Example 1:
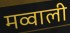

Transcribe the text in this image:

मव्वाली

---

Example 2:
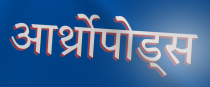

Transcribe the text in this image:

आर्थ्रोपोड्स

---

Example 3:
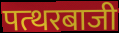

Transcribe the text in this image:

पत्‍थरबाजी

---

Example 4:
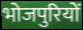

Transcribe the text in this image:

भोजपुरियों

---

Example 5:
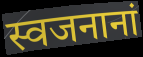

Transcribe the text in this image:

स्वजनानां